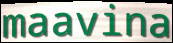
maavina